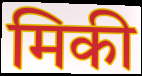
मिकी